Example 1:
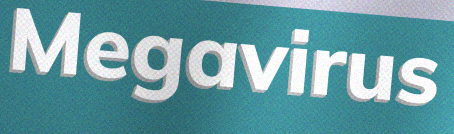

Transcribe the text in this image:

Megavirus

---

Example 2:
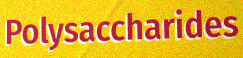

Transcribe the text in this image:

Polysaccharides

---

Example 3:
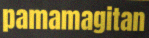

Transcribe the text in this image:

pamamagitan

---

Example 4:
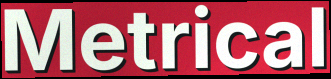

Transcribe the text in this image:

Metrical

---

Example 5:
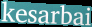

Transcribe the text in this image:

kesarbai